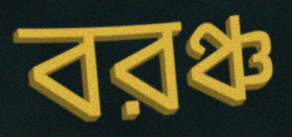
বরঞ্চ